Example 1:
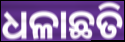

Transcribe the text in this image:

ଧଳାଛତି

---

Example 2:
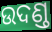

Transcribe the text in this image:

ଉଦଣ୍ଡ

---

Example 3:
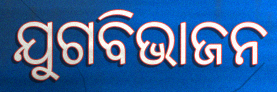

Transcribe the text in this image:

ଯୁଗବିଭାଜନ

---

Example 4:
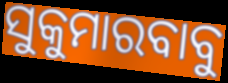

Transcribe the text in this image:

ସୁକୁମାରବାବୁ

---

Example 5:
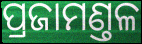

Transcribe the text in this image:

ପ୍ରଜାମଣ୍ତଳ